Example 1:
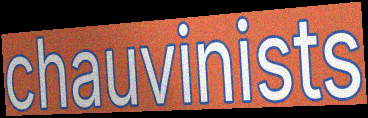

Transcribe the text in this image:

chauvinists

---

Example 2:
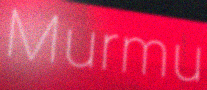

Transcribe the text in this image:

Murmu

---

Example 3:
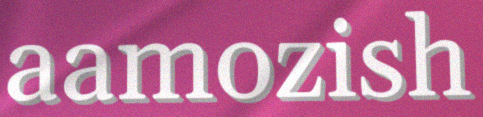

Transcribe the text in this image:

aamozish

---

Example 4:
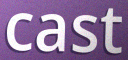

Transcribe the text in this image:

cast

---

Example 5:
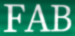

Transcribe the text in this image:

FAB